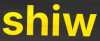
shiw